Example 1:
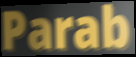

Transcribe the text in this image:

Parab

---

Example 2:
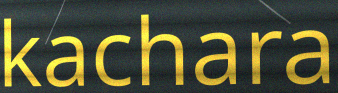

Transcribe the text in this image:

kachara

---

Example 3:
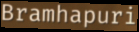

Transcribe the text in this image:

Bramhapuri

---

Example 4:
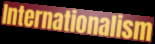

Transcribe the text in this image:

Internationalism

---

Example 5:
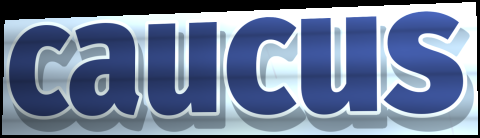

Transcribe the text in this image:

caucus